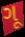
ગૂ